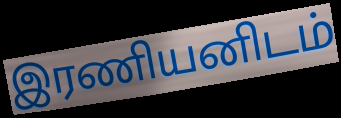
இரணியனிடம்